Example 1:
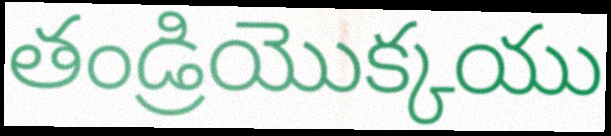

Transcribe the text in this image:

తండ్రియొక్కయు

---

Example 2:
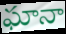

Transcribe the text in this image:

ఘానా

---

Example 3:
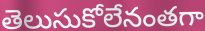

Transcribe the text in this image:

తెలుసుకోలేనంతగా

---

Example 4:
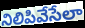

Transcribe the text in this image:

నిలిపివేసేలా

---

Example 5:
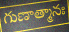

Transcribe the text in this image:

గుణాత్మానః